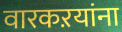
वारकऱयांना